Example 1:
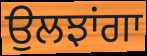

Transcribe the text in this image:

ਉਲਝਾਂਗਾ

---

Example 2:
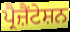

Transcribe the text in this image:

ਪ੍ਰੈਜ਼ੈਂਟੇਸ਼ਨ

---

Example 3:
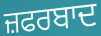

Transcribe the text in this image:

ਜ਼ਫਰਬਾਦ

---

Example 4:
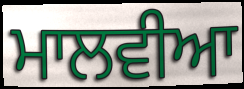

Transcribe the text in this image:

ਮਾਲਵੀਆ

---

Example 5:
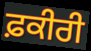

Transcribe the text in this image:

ਫ਼ਕੀਰੀ